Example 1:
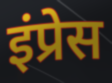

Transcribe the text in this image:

इंप्रेस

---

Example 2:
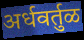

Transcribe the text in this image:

अर्धवर्तुळ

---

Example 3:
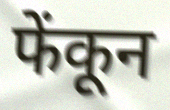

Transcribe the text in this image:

फेंकून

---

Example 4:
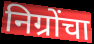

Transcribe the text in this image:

निग्रोंचा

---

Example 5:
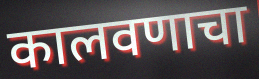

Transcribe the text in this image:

कालवणाचा